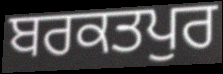
ਬਰਕਤਪੁਰ